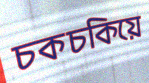
চকচকিয়ে